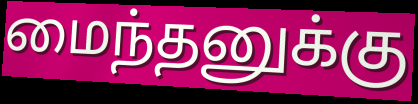
மைந்தனுக்கு